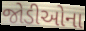
જોડીઓના